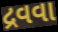
દ્રવવા